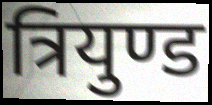
त्रियुण्ड